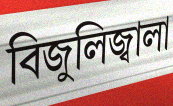
বিজুলিজ্বালা